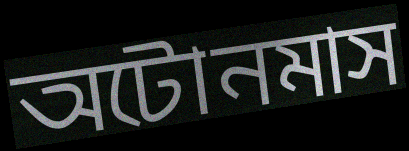
অটোনমাস